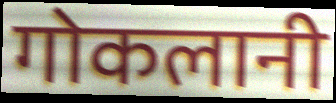
गोकलानी